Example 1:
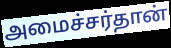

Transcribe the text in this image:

அமைச்சர்தான்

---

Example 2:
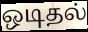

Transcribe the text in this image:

ஒடிதல்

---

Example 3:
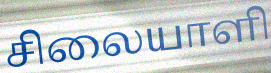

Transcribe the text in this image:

சிலையாளி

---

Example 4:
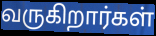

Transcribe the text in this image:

வருகிறார்கள்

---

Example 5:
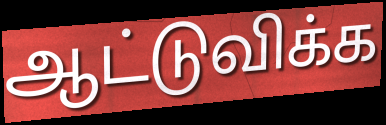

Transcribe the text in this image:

ஆட்டுவிக்க